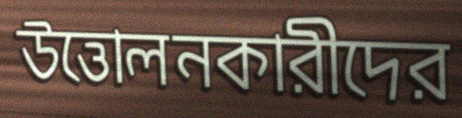
উত্তোলনকারীদের